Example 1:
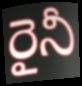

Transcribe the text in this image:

రైనీ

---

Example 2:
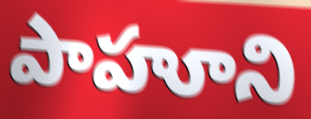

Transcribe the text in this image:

పాహూని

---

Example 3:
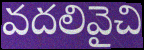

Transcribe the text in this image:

వదలివైచి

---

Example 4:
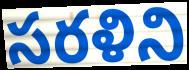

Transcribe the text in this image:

సరళిని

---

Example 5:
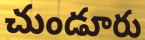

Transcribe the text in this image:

చుండూరు